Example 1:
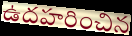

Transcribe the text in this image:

ఉదహరించిన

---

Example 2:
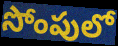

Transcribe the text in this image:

సోంపులో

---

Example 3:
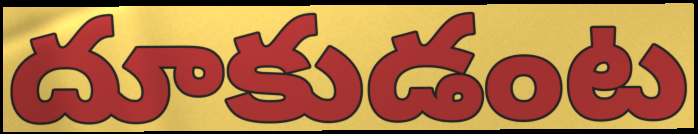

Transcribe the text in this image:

దూకుడంట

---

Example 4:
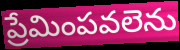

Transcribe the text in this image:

ప్రేమింపవలెను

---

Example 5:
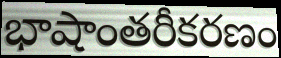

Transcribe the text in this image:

భాషాంతరీకరణం